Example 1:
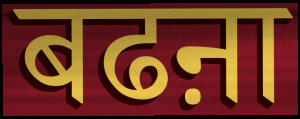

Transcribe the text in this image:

बढऩा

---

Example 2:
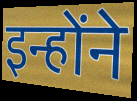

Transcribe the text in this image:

इन्‍होंने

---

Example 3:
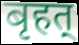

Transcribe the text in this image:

बृहत्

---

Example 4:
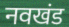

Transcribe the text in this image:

नवखंड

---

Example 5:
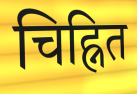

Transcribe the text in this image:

चिह्नित